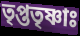
তৃপ্ততৃষ্ণাঃ